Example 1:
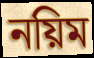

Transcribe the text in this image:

নয়িম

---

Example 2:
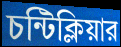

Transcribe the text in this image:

চন্টিক্লিয়ার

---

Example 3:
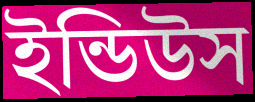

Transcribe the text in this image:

ইন্ডিউস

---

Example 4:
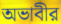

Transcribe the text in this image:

অভাবীর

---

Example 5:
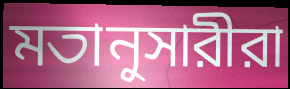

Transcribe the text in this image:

মতানুসারীরা